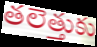
తలెత్తుకు